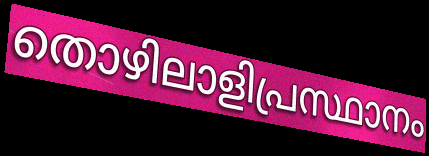
തൊഴിലാളിപ്രസ്ഥാനം